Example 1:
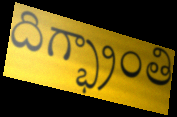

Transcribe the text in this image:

దిగ్భ్రాంతి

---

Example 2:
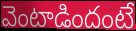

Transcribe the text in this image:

వెంటాడిందంటే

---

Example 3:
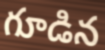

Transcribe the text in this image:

గూడిన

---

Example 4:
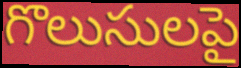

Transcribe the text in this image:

గొలుసులపై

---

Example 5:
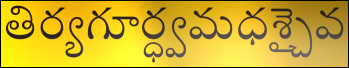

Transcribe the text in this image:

తిర్యగూర్ధ్వమధశ్చైవ